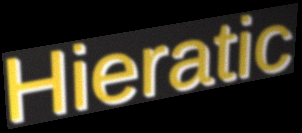
Hieratic